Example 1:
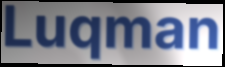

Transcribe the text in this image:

Luqman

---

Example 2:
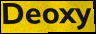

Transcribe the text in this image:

Deoxy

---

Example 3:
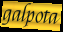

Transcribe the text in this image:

galpota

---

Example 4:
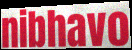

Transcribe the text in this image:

nibhavo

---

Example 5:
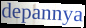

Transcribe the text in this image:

depannya